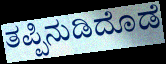
ತಪ್ಪಿನುಡಿದೊಡೆ